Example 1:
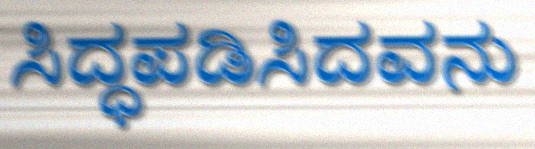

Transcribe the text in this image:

ಸಿದ್ಧಪಡಿಸಿದವನು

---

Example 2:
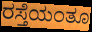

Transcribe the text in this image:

ರಸ್ತೆಯಂತೂ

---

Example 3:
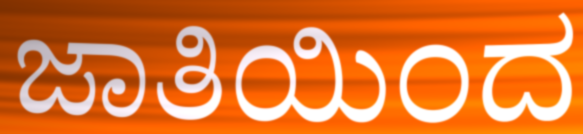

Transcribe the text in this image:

ಜಾತಿಯಿಂದ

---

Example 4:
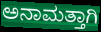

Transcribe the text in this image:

ಅನಾಮತ್ತಾಗಿ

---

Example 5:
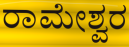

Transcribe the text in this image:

ರಾಮೇಶ್ವರ